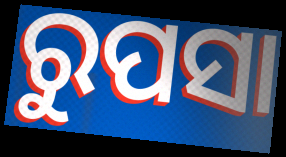
ରୁପସା